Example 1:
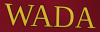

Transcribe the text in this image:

WADA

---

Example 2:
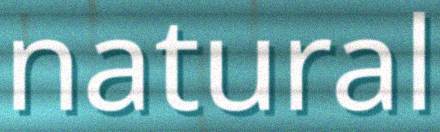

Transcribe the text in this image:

natural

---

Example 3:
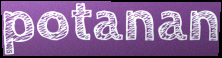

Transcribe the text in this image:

potanan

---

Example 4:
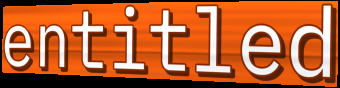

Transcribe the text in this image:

entitled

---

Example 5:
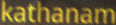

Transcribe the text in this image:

kathanam